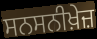
ਸਨਸਨੀਖ਼ੇਜ਼